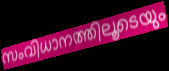
സംവിധാനത്തിലൂടെയും